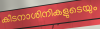
കീടനാശിനികളുടെയും